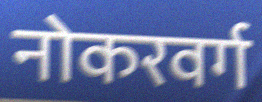
नोकरवर्ग